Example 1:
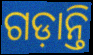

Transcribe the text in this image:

ଗଡ଼ାନ୍ତି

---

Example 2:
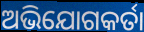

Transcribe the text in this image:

ଅଭିଯୋଗକର୍ତା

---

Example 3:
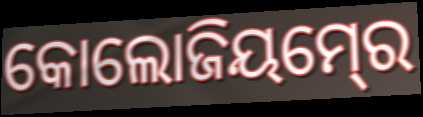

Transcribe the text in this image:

କୋଲୋଜିୟମ୍‍ରେ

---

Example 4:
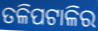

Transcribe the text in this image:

ତଳିପଟାଳିର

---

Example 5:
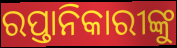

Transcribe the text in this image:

ରପ୍ତାନିକାରୀଙ୍କୁ